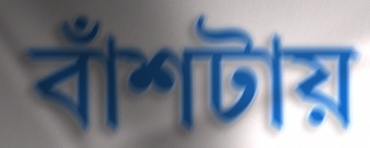
বাঁশটায়